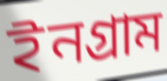
ইনগ্রাম